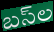
బస్‌ల